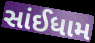
સાંઈધામ